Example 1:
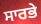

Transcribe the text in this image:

ਸਾਰਭੇ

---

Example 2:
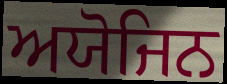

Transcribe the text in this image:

ਅਯੋਜਿਨ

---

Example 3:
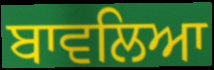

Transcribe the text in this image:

ਬਾਵਲਿਆ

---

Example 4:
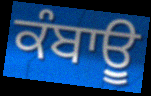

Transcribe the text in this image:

ਕੰਬਾਊੁ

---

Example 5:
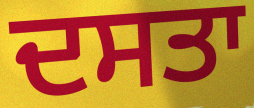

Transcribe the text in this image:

ਦਸਤਾ